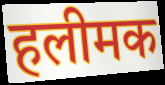
हलीमक